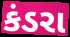
કંડરા